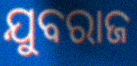
ଯୁବରାଜ